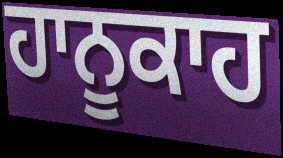
ਹਾਨੂਕਾਹ